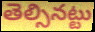
తెల్సినట్టు